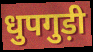
धुपगुड़ी